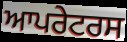
ਆਪਰੇਟਰਸ